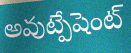
అవుట్పేషెంట్